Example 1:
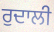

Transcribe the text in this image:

ਰੁਦਾਲੀ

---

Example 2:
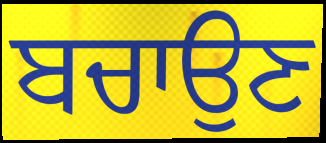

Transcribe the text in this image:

ਬਚਾਉਣ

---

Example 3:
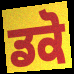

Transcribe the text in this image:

ਡਕੋ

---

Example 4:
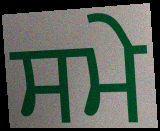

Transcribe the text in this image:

ਸਮੇ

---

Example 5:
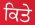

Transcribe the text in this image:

ਕਿਤੇ